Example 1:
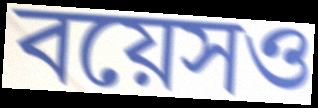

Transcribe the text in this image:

বয়েসও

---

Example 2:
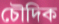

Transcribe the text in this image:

চৌদিক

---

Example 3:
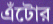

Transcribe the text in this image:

এঁটোর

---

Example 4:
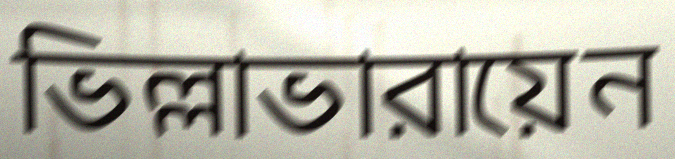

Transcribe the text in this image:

ভিল্লাভারায়েন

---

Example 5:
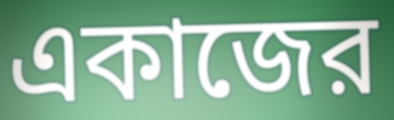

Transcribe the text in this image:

একাজের